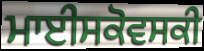
ਮਾਈਸਕੋਵਸਕੀ